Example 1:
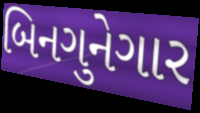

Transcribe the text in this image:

બિનગુનેગાર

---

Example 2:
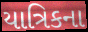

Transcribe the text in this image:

યાત્રિકના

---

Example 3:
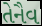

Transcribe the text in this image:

તેનૈવ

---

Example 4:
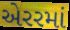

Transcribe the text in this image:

એરરમાં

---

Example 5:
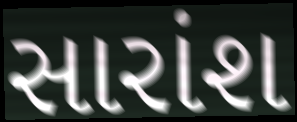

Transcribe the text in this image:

સારાંશ